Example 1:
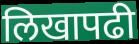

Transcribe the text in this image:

लिखापढी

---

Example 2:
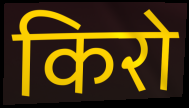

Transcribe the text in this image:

किरो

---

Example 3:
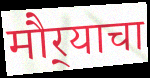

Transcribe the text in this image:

मौर्याचा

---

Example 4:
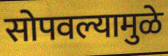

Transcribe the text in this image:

सोपवल्यामुळे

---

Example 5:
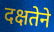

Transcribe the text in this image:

दक्षतेने